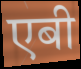
एबी